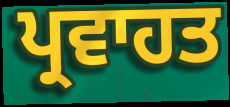
ਪ੍ਰਵਾਹਤ